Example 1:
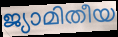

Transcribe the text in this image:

ജ്യാമിതീയ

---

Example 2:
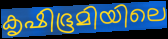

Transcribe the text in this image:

കൃഷിഭൂമിയിലെ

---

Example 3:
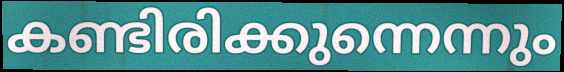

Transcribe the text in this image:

കണ്ടിരിക്കുന്നെന്നും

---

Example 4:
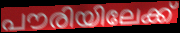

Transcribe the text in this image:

പൗരിയിലേക്ക്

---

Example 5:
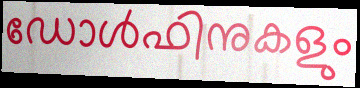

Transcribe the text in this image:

ഡോൾഫിനുകളും